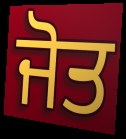
ਜੋਤ